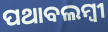
ପଥାବଲମ୍ବୀ